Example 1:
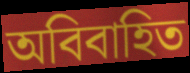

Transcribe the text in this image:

অবিবাহিত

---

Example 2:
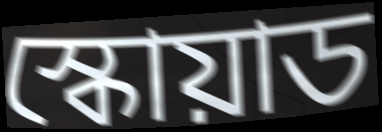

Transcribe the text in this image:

স্কোয়াড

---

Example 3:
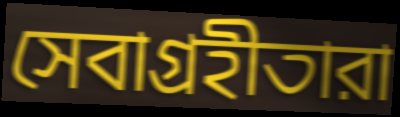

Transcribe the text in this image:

সেবাগ্রহীতারা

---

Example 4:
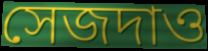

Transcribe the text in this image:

সেজদাও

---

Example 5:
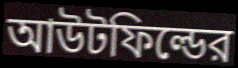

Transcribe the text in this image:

আউটফিল্ডের